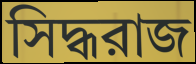
সিদ্ধরাজ